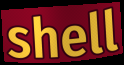
shell